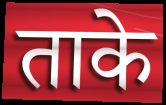
ताके